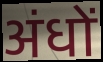
अंधों